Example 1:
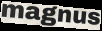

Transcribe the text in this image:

magnus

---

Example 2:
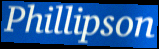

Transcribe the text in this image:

Phillipson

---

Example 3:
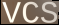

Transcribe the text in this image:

VCS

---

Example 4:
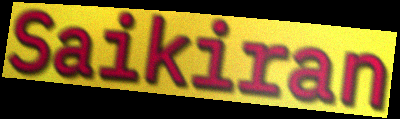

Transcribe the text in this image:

Saikiran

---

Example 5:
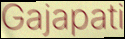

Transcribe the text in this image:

Gajapati